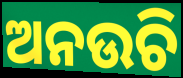
ଅନଉଚି